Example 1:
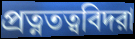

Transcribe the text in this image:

প্রত্নতত্ববিদরা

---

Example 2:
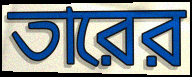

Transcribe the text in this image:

তারের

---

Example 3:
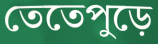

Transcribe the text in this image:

তেতেপুড়ে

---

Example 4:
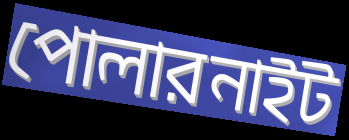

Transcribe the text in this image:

পোলারনাইট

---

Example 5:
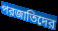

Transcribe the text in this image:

পরজাতিদের